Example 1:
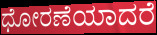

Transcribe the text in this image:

ಧೋರಣೆಯಾದರೆ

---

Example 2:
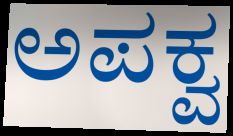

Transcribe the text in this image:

ಅಪಕ್ವ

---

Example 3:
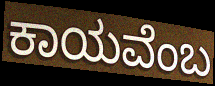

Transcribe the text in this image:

ಕಾಯವೆಂಬ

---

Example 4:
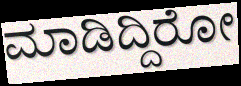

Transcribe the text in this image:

ಮಾಡಿದ್ದಿರೋ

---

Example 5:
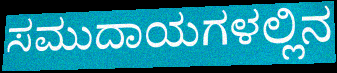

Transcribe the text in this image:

ಸಮುದಾಯಗಳಲ್ಲಿನ